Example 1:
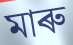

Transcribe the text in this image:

মাৰু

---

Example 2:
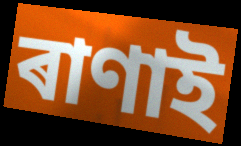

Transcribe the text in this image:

ৰাণাই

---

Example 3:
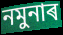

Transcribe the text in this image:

নমুনাৰ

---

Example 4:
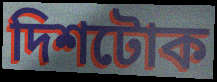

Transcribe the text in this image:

দিশটোক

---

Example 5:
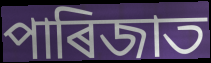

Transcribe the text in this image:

পাৰিজাত